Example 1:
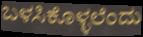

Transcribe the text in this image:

ಬಳಸಿಕೊಳ್ಳಲೆಂದು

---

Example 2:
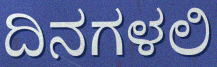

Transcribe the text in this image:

ದಿನಗಳಲಿ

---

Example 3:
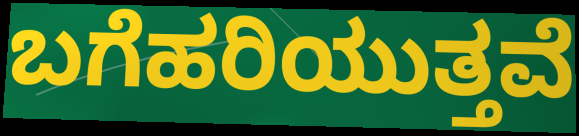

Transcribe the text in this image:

ಬಗೆಹರಿಯುತ್ತವೆ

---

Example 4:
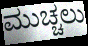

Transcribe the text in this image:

ಮುಚ್ಚಲು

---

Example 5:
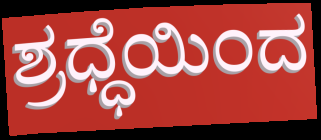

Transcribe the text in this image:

ಶ್ರಧ್ಧೆಯಿಂದ